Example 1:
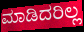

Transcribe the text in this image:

ಮಾಡಿದರಿಲ್ಲ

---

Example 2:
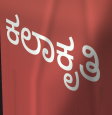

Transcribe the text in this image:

ಕಲಾಕೃತಿ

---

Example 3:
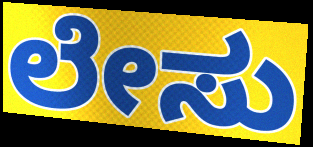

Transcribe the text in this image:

ಲೇಸು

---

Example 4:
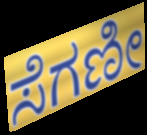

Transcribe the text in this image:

ಸೆಗಣೀ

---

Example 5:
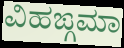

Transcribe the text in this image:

ವಿಹಙ್ಗಮಾ